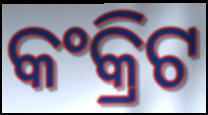
କଂକ୍ରିଟ